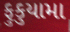
ફુકુયામા